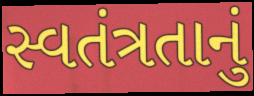
સ્વતંત્રતાનું